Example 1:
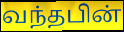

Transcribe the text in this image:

வந்தபின்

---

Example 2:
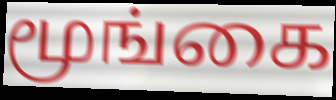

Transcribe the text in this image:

மூங்கை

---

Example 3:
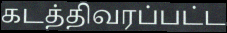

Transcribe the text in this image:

கடத்திவரப்பட்ட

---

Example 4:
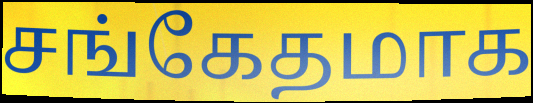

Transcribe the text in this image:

சங்கேதமாக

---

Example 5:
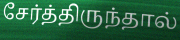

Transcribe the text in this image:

சேர்த்திருந்தால்